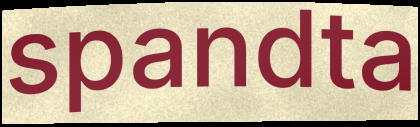
spandta